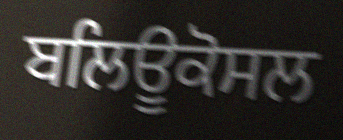
ਬਲਿਊਕੋਸਲ